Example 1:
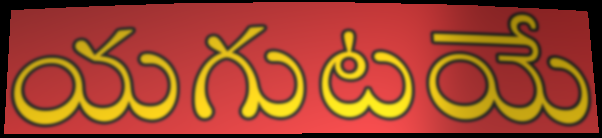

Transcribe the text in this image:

యగుటయే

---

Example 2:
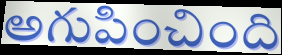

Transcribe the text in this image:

అగుపించింది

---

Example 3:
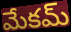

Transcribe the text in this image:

మేకమ్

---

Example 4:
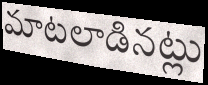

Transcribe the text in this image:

మాటలాడినట్లు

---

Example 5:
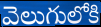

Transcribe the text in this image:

వెలుగులోకి